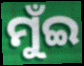
ମୁଁଇ